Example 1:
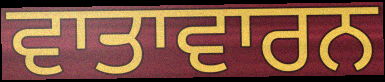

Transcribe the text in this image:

ਵਾਤਾਵਾਰਨ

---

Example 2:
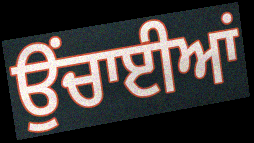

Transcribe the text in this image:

ਉਂਚਾਈਆਂ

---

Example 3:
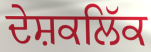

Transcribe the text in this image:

ਦੇਸ਼ਕਲਿੱਕ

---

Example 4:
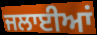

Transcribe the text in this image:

ਜਲਾਈਆਂ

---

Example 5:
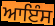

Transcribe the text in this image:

ਆਇੰਸ